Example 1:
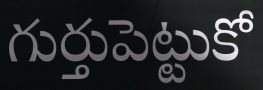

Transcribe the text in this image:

గుర్తుపెట్టుకో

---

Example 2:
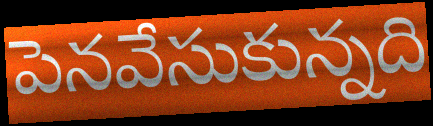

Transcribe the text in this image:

పెనవేసుకున్నది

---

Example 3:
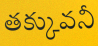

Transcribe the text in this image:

తక్కువనీ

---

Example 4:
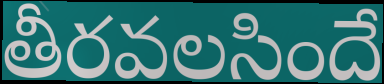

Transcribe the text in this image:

తీరవలసిందే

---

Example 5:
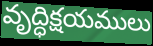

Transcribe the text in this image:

వృద్ధిక్షయములు